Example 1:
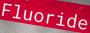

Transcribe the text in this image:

Fluoride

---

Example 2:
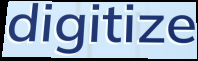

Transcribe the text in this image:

digitize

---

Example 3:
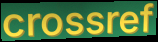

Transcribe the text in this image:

crossref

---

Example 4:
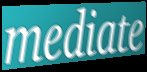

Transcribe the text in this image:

mediate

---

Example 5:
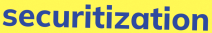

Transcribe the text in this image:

securitization